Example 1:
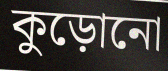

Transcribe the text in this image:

কুড়োনো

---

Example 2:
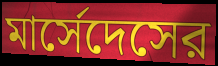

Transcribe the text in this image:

মার্সেদেসের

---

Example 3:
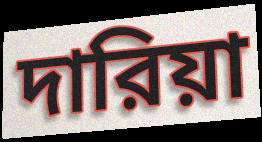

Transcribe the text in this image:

দারিয়া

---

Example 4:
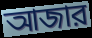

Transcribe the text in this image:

আজার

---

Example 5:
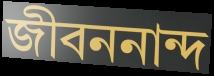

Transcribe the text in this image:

জীবননান্দ